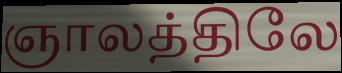
ஞாலத்திலே